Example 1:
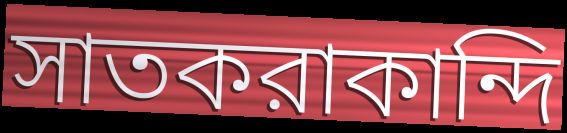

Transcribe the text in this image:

সাতকরাকান্দি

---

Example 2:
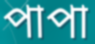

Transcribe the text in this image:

পাপা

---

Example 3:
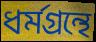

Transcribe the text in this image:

ধর্মগ্রন্থে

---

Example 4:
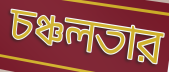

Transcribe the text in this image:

চঞ্চলতার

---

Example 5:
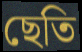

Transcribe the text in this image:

ছেতি